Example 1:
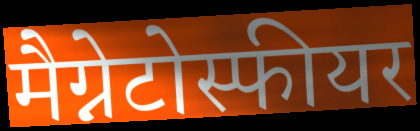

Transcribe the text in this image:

मैग्नेटोस्फीयर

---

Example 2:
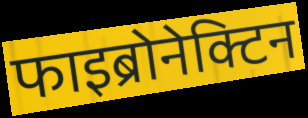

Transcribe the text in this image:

फाइब्रोनेक्टिन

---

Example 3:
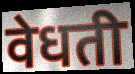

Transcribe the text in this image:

वेधती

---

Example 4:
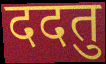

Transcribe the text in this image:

ददतु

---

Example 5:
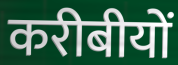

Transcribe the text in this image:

करीबीयों